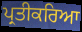
ਪ੍ਰਤੀਕਰਿਆ